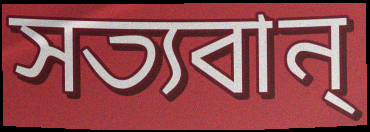
সত্যবান্